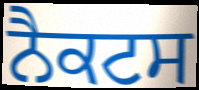
ਨੈਕਟਸ